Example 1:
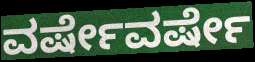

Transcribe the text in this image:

ವರ್ಷೇವರ್ಷೇ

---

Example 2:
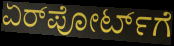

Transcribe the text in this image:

ಏರ್‌ಪೋರ್ಟ್‌ಗೆ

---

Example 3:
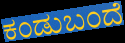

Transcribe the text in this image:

ಕಂಡುಬಂದೆ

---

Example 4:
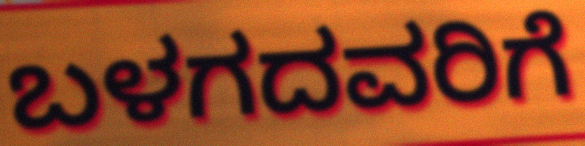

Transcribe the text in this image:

ಬಳಗದವರಿಗೆ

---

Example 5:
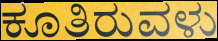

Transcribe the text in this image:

ಕೂತಿರುವಳು